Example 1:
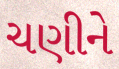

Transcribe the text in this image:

ચણીને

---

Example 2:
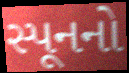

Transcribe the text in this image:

સ્પૂનનો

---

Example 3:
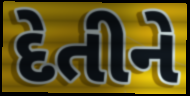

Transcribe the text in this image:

દેતીને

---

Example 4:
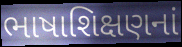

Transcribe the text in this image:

ભાષાશિક્ષણનાં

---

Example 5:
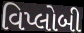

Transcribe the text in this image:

વિપ્લોબી